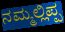
ನಮ್ಮಲ್ಲಿಪ್ಪ